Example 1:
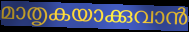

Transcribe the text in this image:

മാതൃകയാക്കുവാൻ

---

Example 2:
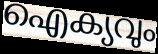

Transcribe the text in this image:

ഐക്യവും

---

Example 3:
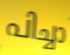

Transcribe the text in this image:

പിച്ചാ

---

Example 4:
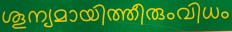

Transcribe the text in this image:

ശൂന്യമായിത്തീരുംവിധം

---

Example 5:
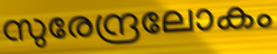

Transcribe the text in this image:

സുരേന്ദ്രലോകം